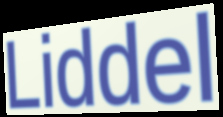
Liddel